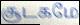
சூடகமே